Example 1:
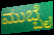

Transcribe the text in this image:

ಮುಬ್ಬೈ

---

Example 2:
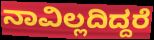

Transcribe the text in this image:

ನಾವಿಲ್ಲದಿದ್ದರೆ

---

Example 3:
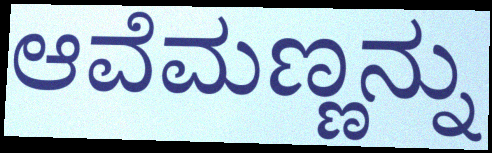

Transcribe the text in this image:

ಆವೆಮಣ್ಣನ್ನು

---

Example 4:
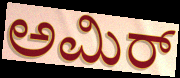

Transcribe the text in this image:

ಅಮಿರ್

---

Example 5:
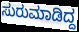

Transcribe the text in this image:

ಸುರುಮಾಡಿದ್ದ